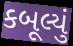
કબૂલ્યું